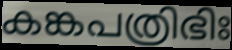
കങ്കപത്രിഭിഃ